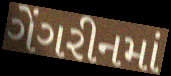
ગેંગરીનમાં